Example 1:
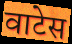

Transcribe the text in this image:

वाटेस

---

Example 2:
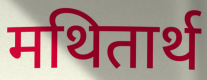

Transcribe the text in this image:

मथितार्थ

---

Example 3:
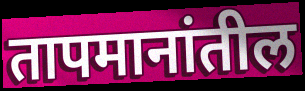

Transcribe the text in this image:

तापमानांतील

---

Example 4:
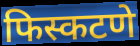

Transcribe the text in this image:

फिस्कटणे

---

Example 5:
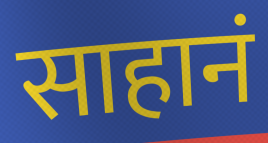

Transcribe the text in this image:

साहानं